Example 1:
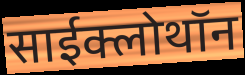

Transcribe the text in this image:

साईक्लोथॉन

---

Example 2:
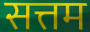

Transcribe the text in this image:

सत्तम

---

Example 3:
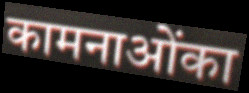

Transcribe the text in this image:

कामनाओंका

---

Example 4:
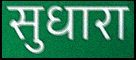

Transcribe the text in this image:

सुधारा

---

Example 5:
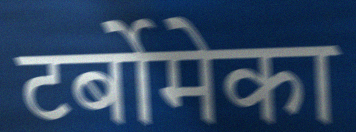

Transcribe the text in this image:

टर्बोमेका